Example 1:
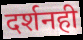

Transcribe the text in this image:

दर्शनही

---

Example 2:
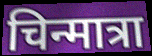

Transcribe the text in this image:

चिन्मात्रा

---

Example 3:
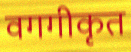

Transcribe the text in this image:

वगगीकृत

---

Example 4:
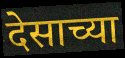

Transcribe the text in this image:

देसाच्या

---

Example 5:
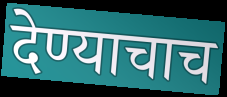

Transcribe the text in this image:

देण्याचाच